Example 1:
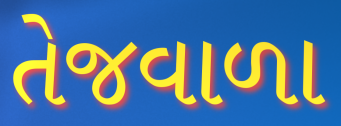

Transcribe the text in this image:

તેજવાળા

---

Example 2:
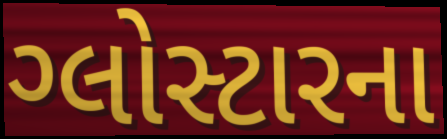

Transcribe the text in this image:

ગ્લોસ્ટારના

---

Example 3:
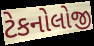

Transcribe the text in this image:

ટેકનોલોજી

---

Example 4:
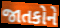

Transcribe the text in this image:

જાતકોને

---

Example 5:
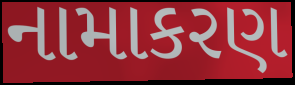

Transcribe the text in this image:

નામાકરણ